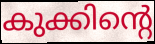
കുക്കിന്റെ